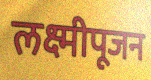
लक्ष्मीपूजन